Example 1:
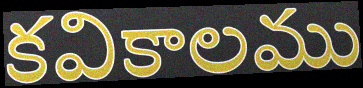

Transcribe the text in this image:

కవికాలము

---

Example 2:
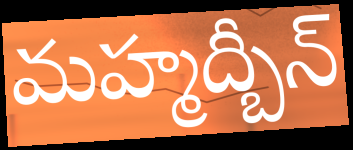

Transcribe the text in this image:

మహ్మద్బీన్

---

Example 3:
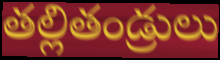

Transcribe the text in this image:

తల్లితండ్రులు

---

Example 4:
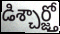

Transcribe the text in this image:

డిశ్చార్జ్తో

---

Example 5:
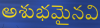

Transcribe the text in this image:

అశుభమైనవి